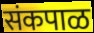
संकपाळ